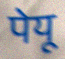
पेयू